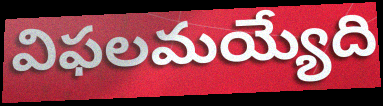
విఫలమయ్యేది